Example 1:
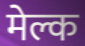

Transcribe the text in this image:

मेल्क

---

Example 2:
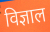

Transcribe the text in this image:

विज्ञाल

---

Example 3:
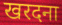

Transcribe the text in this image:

खरदना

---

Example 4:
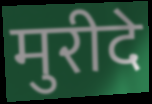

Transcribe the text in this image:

मुरीदे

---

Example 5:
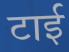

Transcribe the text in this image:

टाई